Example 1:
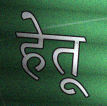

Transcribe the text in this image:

हेतू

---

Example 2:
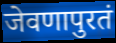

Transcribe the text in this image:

जेवणापुरतं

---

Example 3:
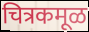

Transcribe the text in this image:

चित्रकमूळ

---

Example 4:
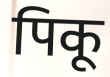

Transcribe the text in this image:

पिकू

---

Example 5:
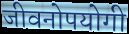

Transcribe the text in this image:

जीवनोपयोगी